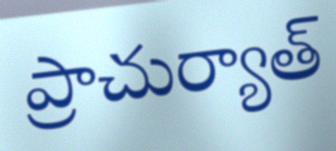
ప్రాచుర్యాత్